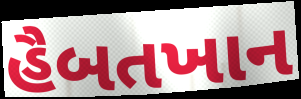
હૈબતખાન